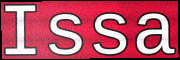
Issa